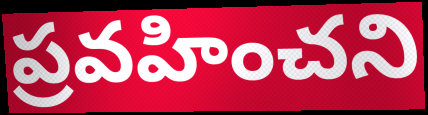
ప్రవహించని